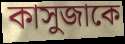
কাসুজাকে